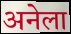
अनेला